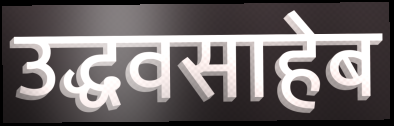
उद्धवसाहेब